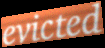
evicted